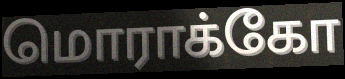
மொராக்கோ